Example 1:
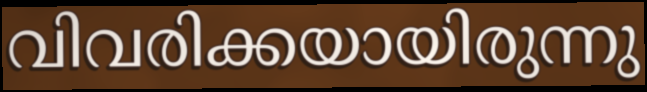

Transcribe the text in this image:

വിവരിക്കയായിരുന്നു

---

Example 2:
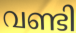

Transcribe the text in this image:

വണ്ടി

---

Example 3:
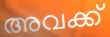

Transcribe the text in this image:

അവക്ക്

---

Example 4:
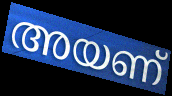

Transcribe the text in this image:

അയണ്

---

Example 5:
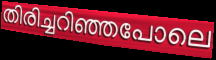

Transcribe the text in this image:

തിരിച്ചറിഞ്ഞപോലെ